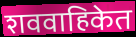
शववाहिकेत